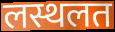
लस्थलत